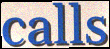
calls